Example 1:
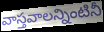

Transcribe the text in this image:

వాస్తవాలన్నింటినీ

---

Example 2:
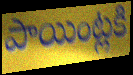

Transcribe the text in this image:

పాయింట్లకి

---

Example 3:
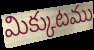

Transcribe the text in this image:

మిక్కుటము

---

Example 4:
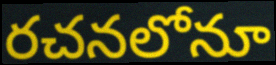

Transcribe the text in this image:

రచనలోనూ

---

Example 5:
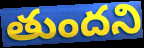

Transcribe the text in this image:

తుందని